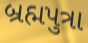
બ્રહ્મપુત્રા